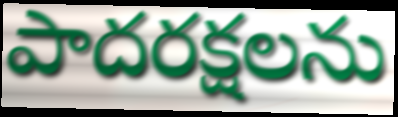
పాదరక్షలను